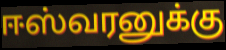
ஈஸ்வரனுக்கு